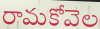
రామకోవెల